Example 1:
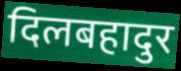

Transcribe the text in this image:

दिलबहादुर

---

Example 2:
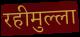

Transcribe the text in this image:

रहीमुल्ला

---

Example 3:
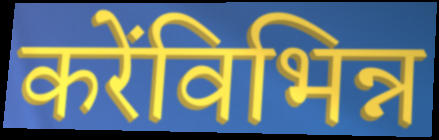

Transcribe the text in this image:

करेंविभिन्न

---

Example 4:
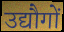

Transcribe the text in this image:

उद्यौगों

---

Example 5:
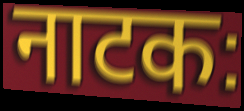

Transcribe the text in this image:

नाटकः